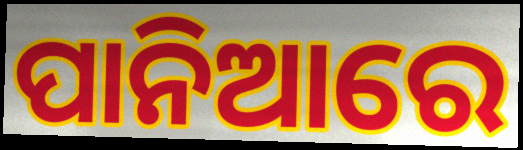
ପାନିଆରେ